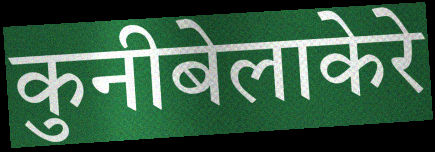
कुनीबेलाकेरे